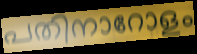
പതിനാറോളം